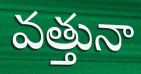
వత్తునా